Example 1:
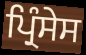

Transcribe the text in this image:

ਪ੍ਰਿੰਸੇਸ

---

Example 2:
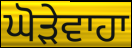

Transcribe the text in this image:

ਘੋੜੇਵਾਹਾ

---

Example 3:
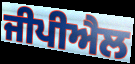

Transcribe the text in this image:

ਜੀਪੀਐਲ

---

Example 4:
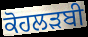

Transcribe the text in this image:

ਕੋਹਲੜਬੀ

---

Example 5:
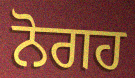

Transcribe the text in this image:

ਨੋਗਹ